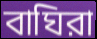
বাঘিরা